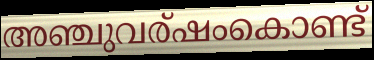
അഞ്ചുവര്ഷംകൊണ്ട്